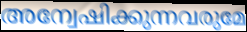
അന്വേഷിക്കുന്നവരുമേ